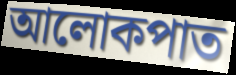
আলোকপাত